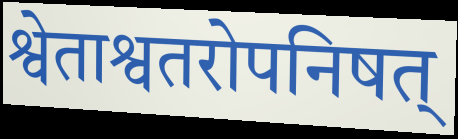
श्वेताश्वतरोपनिषत्